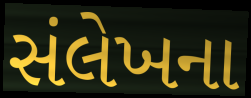
સંલેખના